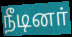
நீடினர்